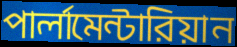
পার্লামেন্টারিয়ান